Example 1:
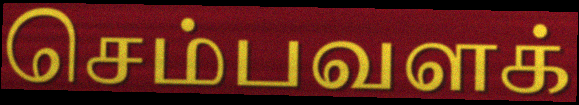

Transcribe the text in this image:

செம்பவளக்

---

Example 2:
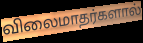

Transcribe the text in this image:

விலைமாதர்களால்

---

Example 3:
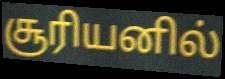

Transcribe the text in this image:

சூரியனில்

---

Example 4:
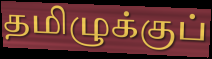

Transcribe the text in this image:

தமிழுக்குப்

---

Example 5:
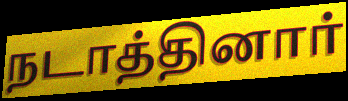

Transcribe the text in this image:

நடாத்தினார்